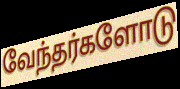
வேந்தர்களோடு